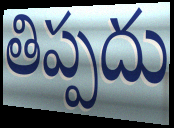
తిప్పదు